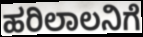
ಹರಿಲಾಲನಿಗೆ